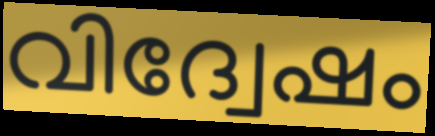
വിദ്വേഷം